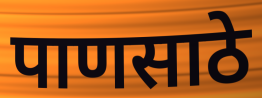
पाणसाठे